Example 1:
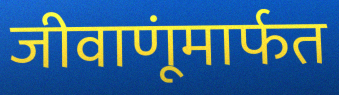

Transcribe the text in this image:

जीवाणूंमार्फत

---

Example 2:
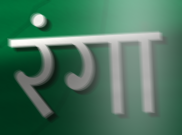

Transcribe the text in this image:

रंगा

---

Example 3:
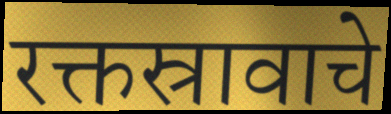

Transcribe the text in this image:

रक्तस्रावाचे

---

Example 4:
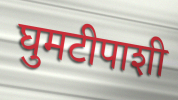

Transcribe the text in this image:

घुमटीपाशी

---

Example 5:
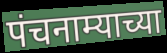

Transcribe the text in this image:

पंचनाम्याच्या